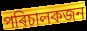
পৰিচালকজন